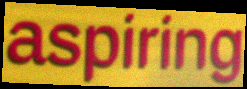
aspiring